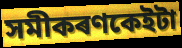
সমীকৰণকেইটা